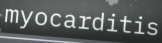
myocarditis